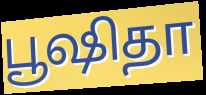
பூஷிதா